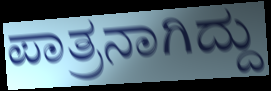
ಪಾತ್ರನಾಗಿದ್ದು